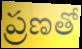
ప్రణతో